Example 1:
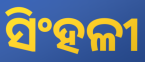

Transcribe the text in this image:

ସିଂହଳୀ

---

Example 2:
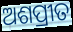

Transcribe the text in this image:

ଅଶପ୍ରୀତ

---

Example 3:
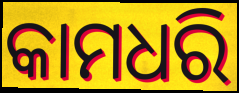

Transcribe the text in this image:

କାମଧରି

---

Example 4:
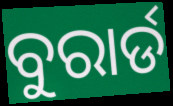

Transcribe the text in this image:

ବୁରାର୍ଡ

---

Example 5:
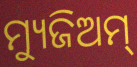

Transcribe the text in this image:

ମ୍ୟୁଜିଅମ୍